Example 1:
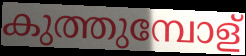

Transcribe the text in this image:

കുത്തുമ്പോള്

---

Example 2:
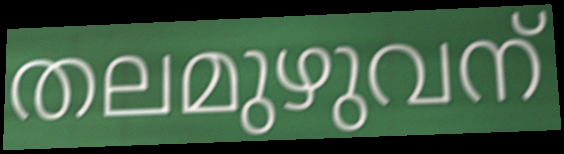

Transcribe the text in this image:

തലമുഴുവന്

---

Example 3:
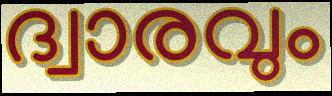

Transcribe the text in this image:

ദ്വാരവും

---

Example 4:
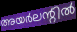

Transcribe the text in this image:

അയർലന്റിൽ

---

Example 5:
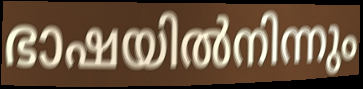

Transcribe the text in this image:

ഭാഷയിൽനിന്നും